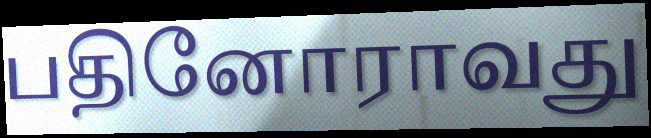
பதினோராவது